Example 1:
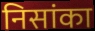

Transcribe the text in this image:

निसांका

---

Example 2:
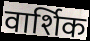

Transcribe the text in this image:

वार्शिक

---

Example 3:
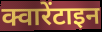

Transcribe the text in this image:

क्वारेंटाइन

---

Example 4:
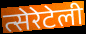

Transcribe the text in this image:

त्सेरेटेली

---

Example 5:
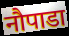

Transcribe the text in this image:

नौपाडा